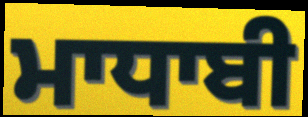
ਮਾਧਾਬੀ